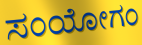
ಸಂಯೋಗಂ